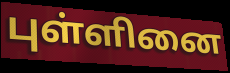
புள்ளினை